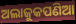
ଅଲାଜୁକପଣିଆ